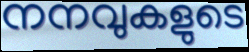
നനവുകളുടെ